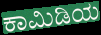
ಕಾಮಿಡಿಯ